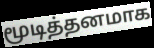
மூடித்தனமாக